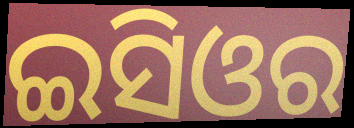
ଇସିଓର